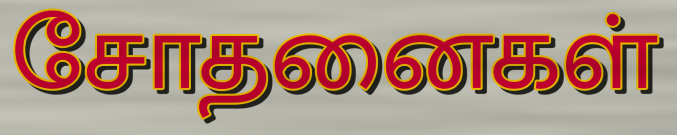
சோதனைகள்